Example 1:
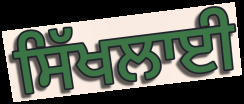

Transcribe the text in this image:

ਸਿੱਖਲਾਈ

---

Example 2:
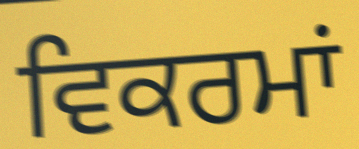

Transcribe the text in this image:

ਵਿਕਰਮਾਂ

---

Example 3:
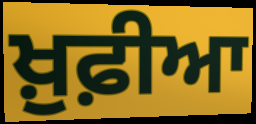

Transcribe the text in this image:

ਖ਼ੁਫ਼ੀਆ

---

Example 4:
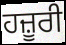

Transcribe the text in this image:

ਹਜ਼ੂਰੀ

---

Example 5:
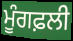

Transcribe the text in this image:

ਮੂੰਗਫ਼ਲੀ